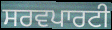
ਸਰਵਪਾਰਟੀ